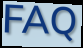
FAQ